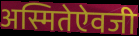
अस्मितेऐवजी